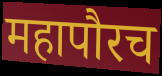
महापौरच